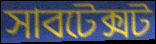
সাবটেক্সট